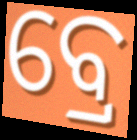
ବ୍ରେ